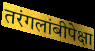
तरंगलांबीपेक्षा